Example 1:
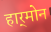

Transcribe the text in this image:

हार्मोन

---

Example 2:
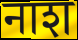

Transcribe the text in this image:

नाश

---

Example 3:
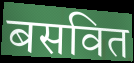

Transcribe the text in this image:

बसवित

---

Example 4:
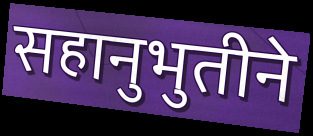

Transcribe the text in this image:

सहानुभुतीने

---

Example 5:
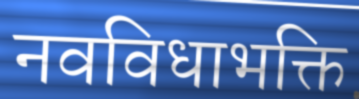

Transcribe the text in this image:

नवविधाभक्ति